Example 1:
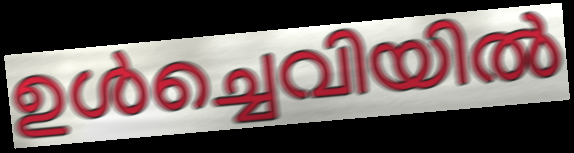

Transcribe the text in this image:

ഉൾച്ചെവിയിൽ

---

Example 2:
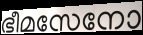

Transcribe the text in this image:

ഭീമസേനോ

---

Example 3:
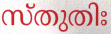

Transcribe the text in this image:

സ്തുതിഃ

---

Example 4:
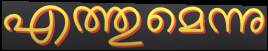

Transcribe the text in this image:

എത്തുമെന്നു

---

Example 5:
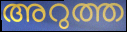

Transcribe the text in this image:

അറുത്ത